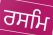
ਰਸਮਿ